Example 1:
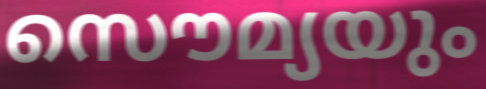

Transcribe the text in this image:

സൌമ്യയും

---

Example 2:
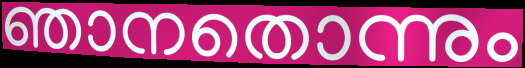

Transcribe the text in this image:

ഞാനതൊന്നും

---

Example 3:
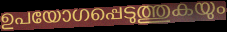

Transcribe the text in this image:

ഉപയോഗപ്പെടുത്തുകയും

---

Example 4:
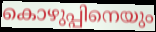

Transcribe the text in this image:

കൊഴുപ്പിനെയും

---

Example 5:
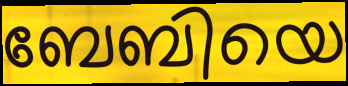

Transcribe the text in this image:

ബേബിയെ